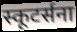
स्कूटर्सना